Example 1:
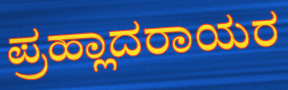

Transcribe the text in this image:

ಪ್ರಹ್ಲಾದರಾಯರ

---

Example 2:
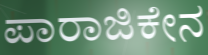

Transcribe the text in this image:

ಪಾರಾಜಿಕೇನ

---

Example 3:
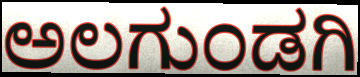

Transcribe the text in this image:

ಅಲಗುಂಡಗಿ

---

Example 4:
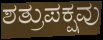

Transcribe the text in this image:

ಶತ್ರುಪಕ್ಷವು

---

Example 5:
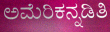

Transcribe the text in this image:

ಅಮೆರಿಕನ್ನಡಿತಿ